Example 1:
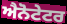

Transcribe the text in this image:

ਐਨੋਟੇਟਰ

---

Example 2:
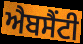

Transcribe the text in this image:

ਐਬਸੈਂਟੀ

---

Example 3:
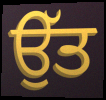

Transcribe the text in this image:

ਉੱਤ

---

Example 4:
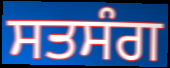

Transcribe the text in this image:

ਸਤਸੰਗ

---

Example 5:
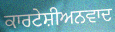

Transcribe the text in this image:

ਕਾਰਟੇਸ਼ੀਅਨਵਾਦ